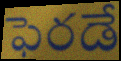
ఫెరడే